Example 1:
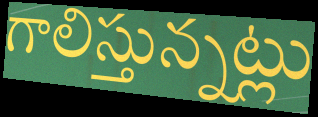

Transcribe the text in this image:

గాలిస్తున్నట్లు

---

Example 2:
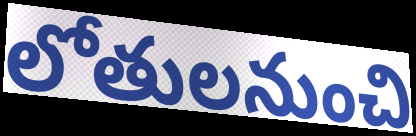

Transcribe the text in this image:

లోతులనుంచి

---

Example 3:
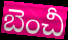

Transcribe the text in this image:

బెంచీ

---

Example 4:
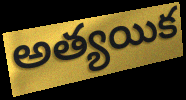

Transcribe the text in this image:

అత్యయిక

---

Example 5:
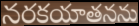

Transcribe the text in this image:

నరకయాతనను